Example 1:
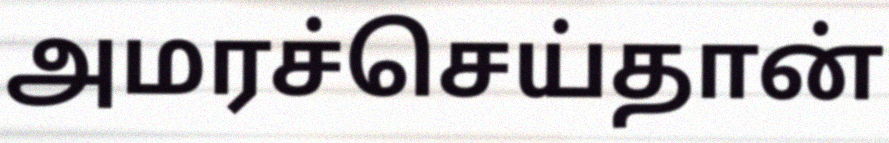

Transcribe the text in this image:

அமரச்செய்தான்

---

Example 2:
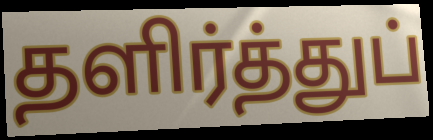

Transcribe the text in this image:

தளிர்த்துப்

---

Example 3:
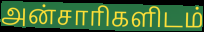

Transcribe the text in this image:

அன்சாரிகளிடம்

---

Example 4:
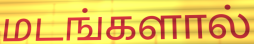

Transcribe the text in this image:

மடங்களால்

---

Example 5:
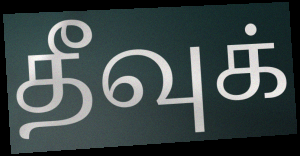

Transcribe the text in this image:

தீவுக்